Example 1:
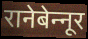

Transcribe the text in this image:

रानेबेन्नूर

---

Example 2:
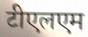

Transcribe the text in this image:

टीएलएम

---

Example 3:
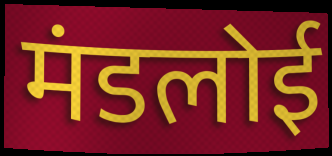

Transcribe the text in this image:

मंडलोई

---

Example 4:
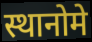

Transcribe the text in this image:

स्थानोमे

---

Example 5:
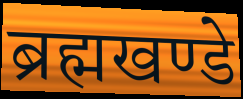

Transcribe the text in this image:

ब्रह्मखण्डे